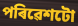
পৰিৱেশটো